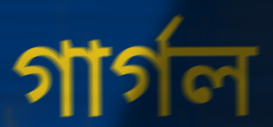
গার্গল